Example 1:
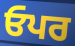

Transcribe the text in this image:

ਓਪਰ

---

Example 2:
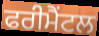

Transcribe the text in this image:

ਫਰੀਮੈਂਟਲ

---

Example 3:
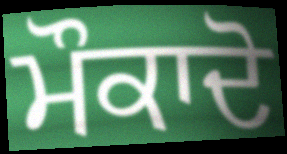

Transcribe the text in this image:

ਮੌਕਾਦੋ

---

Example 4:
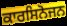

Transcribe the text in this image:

ਕਾਰਸਿਨੋਜਨ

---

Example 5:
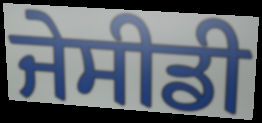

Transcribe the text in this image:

ਜੇਸੀਡੀ